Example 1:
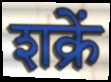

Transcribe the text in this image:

शक्रें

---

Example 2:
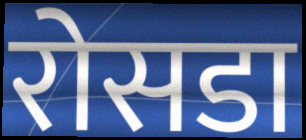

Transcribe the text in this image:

रोसडा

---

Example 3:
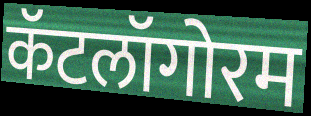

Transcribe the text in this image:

कॅटलॉगोरम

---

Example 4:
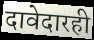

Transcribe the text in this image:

दावेदारही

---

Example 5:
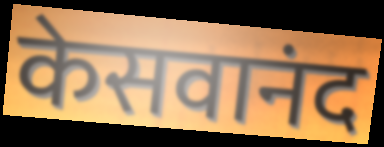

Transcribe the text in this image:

केसवानंद